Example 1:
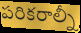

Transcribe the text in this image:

పరికరాల్నీ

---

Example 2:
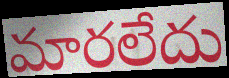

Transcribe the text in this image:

మారలేదు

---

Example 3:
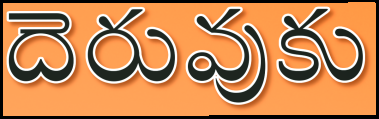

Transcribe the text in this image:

దెరువుకు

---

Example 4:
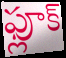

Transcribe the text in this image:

ఫ్లూక్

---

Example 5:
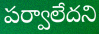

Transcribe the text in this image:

పర్వాలేదని